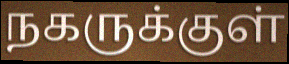
நகருக்குள்